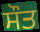
ਸੌਤ